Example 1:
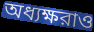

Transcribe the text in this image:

অধ্যক্ষরাও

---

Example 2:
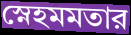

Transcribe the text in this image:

স্নেহমমতার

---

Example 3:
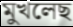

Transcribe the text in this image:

মুখলেছ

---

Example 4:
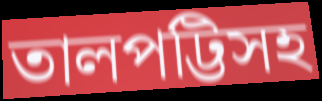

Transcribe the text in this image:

তালপট্টিসহ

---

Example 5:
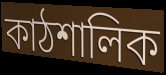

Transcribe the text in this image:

কাঠশালিক